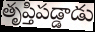
తృప్తిపడ్డాడు